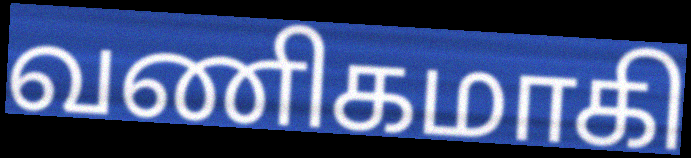
வணிகமாகி